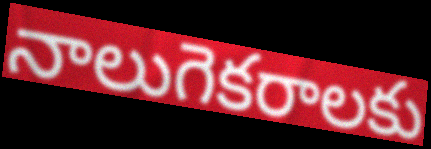
నాలుగెకరాలకు